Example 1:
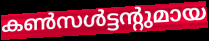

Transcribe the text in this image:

കൺസൾട്ടന്റുമായ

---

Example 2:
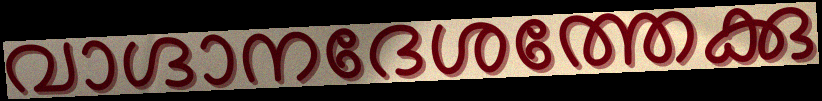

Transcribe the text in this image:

വാഗ്ദാനദേശത്തേക്കു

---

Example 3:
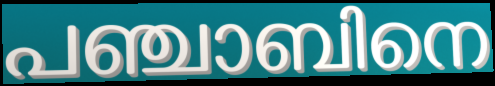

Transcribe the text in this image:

പഞ്ചാബിനെ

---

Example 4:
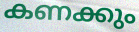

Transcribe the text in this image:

കണക്കും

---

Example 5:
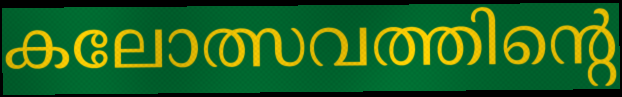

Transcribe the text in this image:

കലോത്സവത്തിന്റെ